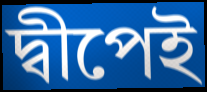
দ্বীপেই